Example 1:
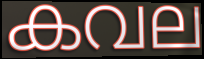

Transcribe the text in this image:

കവല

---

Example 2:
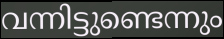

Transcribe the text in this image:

വന്നിട്ടുണ്ടെന്നും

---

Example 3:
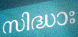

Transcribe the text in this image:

സിദ്ധാഃ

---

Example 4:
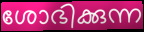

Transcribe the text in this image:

ശോഭിക്കുന്ന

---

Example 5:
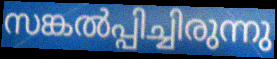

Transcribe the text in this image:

സങ്കൽപ്പിച്ചിരുന്നു